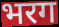
भरग